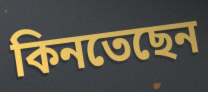
কিনতেছেন